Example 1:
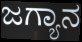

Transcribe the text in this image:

ಜಗ್ಯಾನ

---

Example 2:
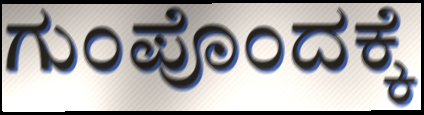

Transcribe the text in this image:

ಗುಂಪೊಂದಕ್ಕೆ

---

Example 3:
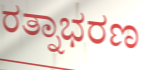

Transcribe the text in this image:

ರತ್ನಾಭರಣ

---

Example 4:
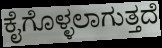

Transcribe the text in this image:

ಕೈಗೊಳ್ಳಲಾಗುತ್ತದೆ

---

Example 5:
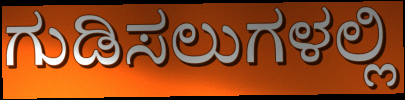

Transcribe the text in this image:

ಗುಡಿಸಲುಗಳಲ್ಲಿ